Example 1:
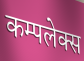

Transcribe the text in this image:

कम्पलेक्स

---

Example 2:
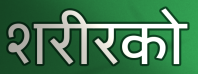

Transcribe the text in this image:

शरीरको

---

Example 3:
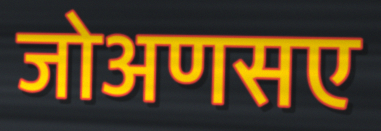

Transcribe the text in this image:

जोअणसए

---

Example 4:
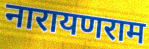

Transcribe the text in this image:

नारायणराम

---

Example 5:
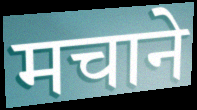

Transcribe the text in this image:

मचाने